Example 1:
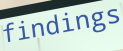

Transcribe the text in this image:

findings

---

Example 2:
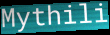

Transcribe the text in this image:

Mythili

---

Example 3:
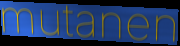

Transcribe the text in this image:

mutanen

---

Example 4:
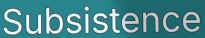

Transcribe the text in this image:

Subsistence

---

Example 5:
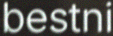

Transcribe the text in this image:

bestni